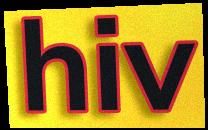
hiv